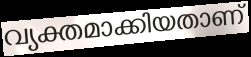
വ്യക്തമാക്കിയതാണ്